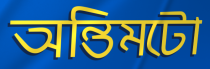
অন্তিমটো